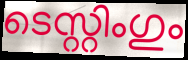
ടെസ്റ്റിംഗും